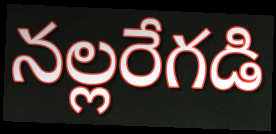
నల్లరేగడి